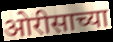
ओरीसाच्या